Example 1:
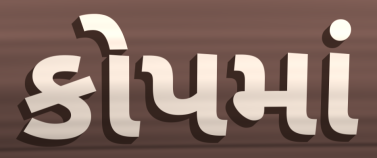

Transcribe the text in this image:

કોપમાં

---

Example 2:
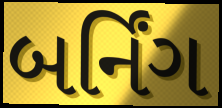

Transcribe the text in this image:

બર્નિંગ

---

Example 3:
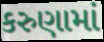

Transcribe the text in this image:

કરુણામાં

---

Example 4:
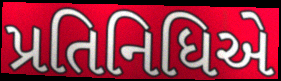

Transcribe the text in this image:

પ્રતિનિધિએ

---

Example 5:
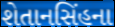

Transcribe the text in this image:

શેતાનસિંહના